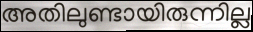
അതിലുണ്ടായിരുന്നില്ല